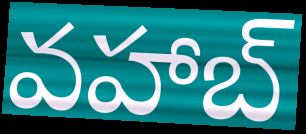
వహాబ్